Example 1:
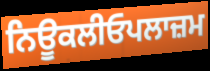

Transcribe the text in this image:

ਨਿਊਕਲੀਓਪਲਾਜ਼ਮ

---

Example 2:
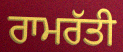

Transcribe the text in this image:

ਰਾਮਰੱਤੀ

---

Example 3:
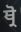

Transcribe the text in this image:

ਥ੍ਰੋ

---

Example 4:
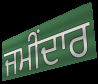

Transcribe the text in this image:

ਜਮੀਂਦਾਰ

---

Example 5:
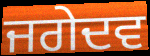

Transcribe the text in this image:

ਜਗੇਦਵ